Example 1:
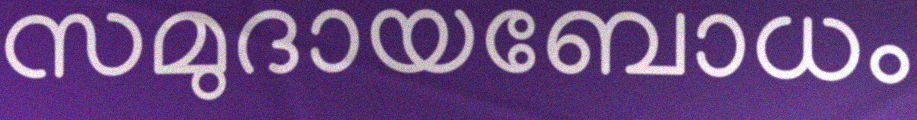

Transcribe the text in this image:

സമുദായബോധം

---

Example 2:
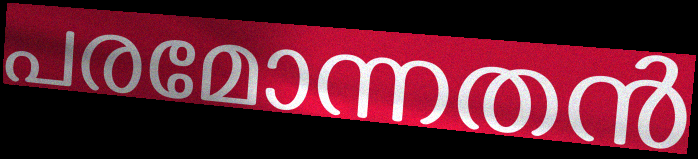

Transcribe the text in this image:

പരമോന്നതൻ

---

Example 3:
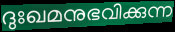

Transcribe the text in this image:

ദുഃഖമനുഭവിക്കുന്ന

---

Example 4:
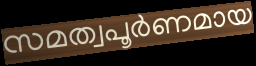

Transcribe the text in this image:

സമത്വപൂർണമായ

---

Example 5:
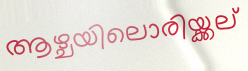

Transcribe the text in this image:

ആഴ്ചയിലൊരിയ്ക്കല്